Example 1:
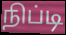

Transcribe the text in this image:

நிப்டி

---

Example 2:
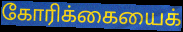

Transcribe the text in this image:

கோரிக்கையைக்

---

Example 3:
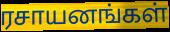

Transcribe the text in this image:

ரசாயனங்கள்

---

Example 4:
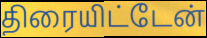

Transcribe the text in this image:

திரையிட்டேன்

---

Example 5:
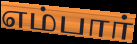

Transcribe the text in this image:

எம்பார்